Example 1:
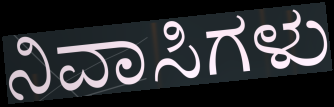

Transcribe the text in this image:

ನಿವಾಸಿಗಳು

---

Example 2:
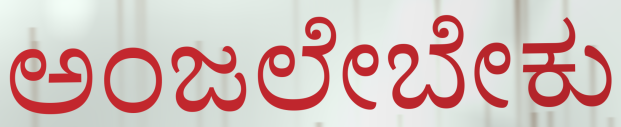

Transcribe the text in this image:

ಅಂಜಲೇಬೇಕು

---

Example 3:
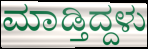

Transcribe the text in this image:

ಮಾಡ್ತಿದ್ದಳು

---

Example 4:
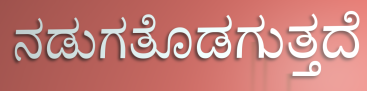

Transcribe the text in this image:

ನಡುಗತೊಡಗುತ್ತದೆ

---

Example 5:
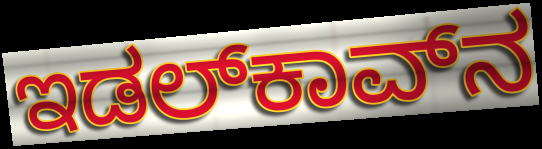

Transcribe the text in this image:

ಇಡಲ್‌ಕಾವ್‌ನ